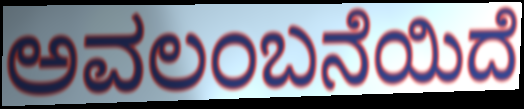
ಅವಲಂಬನೆಯಿದೆ